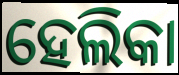
ହେଲିକା